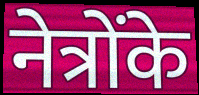
नेत्रोंके